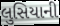
લુસિયાની